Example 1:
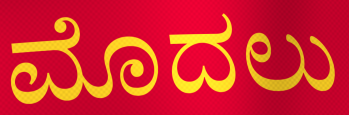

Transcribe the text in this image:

ಮೊದಲು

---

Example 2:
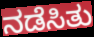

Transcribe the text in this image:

ನಡೆಸಿತು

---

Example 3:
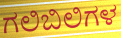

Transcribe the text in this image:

ಗಲಿಬಿಲಿಗಳ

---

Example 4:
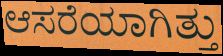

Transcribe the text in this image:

ಆಸರೆಯಾಗಿತ್ತು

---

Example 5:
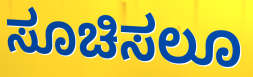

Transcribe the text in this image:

ಸೂಚಿಸಲೂ